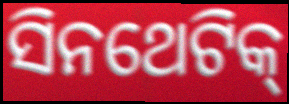
ସିନଥେଟିକ୍